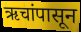
ऋचांपासून